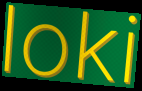
loki